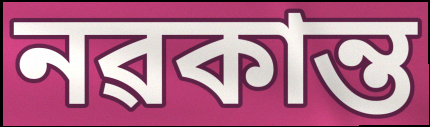
নৱকান্ত